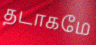
தடாகமே